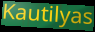
Kautilyas